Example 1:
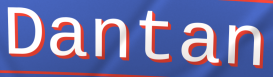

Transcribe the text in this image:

Dantan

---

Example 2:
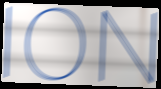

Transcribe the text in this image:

ION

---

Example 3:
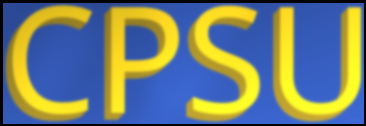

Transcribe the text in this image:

CPSU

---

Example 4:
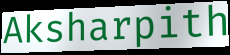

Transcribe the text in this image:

Aksharpith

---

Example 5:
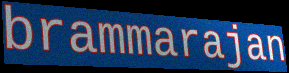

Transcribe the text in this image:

brammarajan